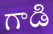
గాడి